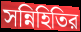
সন্নিহিতির